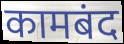
कामबंद